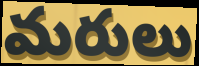
మరులు